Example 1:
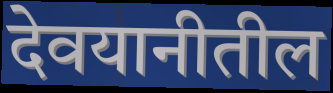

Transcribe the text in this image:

देवयानीतील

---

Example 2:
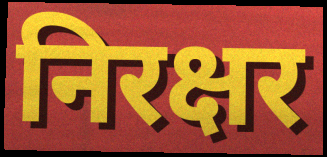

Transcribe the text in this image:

निरक्षर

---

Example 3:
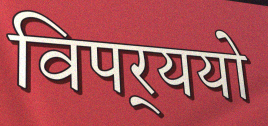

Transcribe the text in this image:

विपर्ययो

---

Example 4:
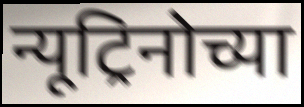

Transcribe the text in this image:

न्यूट्रिनोच्या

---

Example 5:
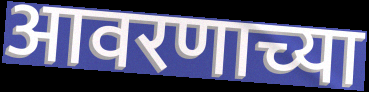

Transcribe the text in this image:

आवरणाच्या